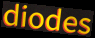
diodes